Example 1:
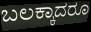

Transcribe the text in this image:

ಬಲಕ್ಕಾದರೂ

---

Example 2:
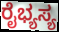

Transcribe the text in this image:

ರೈಭ್ಯಸ್ಯ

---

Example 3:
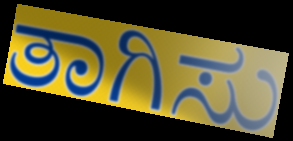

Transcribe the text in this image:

ತಾಗಿಸು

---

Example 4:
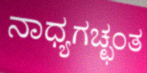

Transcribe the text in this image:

ನಾಧ್ಯಗಚ್ಛಂತ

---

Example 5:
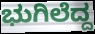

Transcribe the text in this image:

ಭುಗಿಲೆದ್ದ